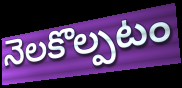
నెలకొల్పటం